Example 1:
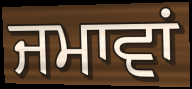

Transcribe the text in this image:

ਜਮਾਵਾਂ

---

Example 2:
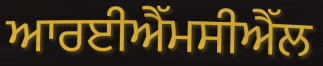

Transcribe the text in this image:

ਆਰਈਐੱਮਸੀਐੱਲ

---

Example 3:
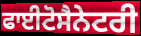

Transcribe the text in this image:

ਫਾਈਟੋਸੈਨੇਟਰੀ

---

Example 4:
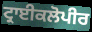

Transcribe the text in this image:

ਟ੍ਰਾਈਕਲੋਪੀਰ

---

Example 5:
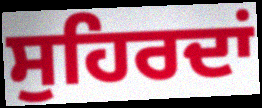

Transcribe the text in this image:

ਸੁਹਿਰਦਾਂ